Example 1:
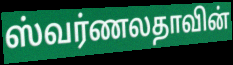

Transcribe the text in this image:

ஸ்வர்ணலதாவின்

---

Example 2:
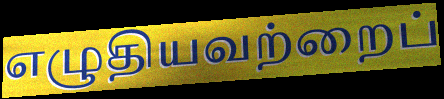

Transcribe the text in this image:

எழுதியவற்றைப்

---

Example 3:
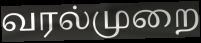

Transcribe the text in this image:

வரல்முறை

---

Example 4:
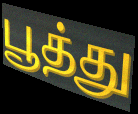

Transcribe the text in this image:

பூத்து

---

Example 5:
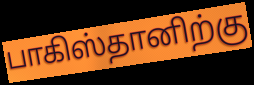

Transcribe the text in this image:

பாகிஸ்தானிற்கு